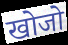
खोजो